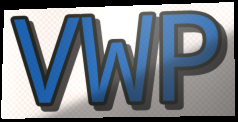
VWP